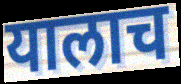
यालाच